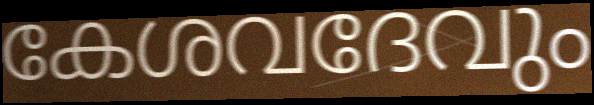
കേശവദേവും